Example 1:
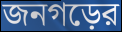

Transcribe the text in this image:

জনগড়ের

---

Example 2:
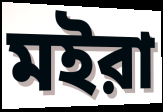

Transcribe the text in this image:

মইরা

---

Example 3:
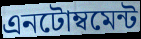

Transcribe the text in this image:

এনটোম্বমেন্ট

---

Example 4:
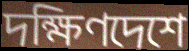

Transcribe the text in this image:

দক্ষিণদেশে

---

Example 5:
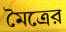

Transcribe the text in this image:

মৈত্রের